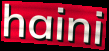
haini